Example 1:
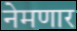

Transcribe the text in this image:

नेमणार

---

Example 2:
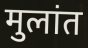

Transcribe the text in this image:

मुलांत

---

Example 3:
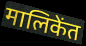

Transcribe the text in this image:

मालिकेंत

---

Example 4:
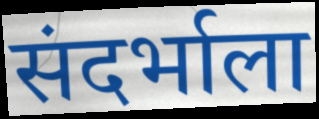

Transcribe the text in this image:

संदर्भाला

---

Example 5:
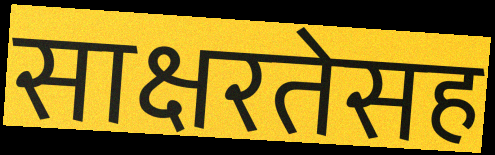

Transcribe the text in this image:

साक्षरतेसह